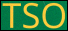
TSO